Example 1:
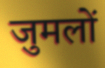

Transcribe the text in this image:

जुमलों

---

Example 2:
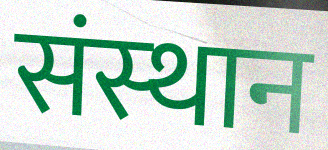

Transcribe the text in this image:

संस्‍थान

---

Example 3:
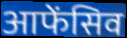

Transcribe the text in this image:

आफेंसिव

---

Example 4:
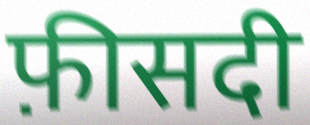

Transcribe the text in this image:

फ़ीसदी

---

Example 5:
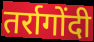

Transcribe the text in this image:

तर्रागोंदी